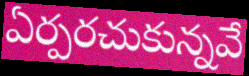
ఏర్పరచుకున్నవే